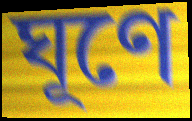
ঘূণে